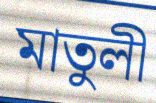
মাতুলী